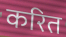
करित